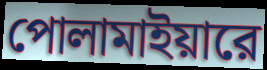
পোলামাইয়ারে